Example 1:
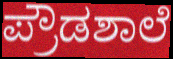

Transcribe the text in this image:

ಪ್ರೌಡಶಾಲೆ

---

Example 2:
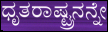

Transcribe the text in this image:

ಧೃತರಾಷ್ಟ್ರನನ್ನೇ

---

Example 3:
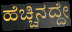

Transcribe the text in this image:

ಹೆಚ್ಚಿನದ್ದೇ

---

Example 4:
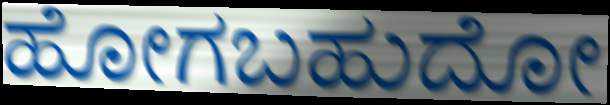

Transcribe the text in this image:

ಹೋಗಬಹುದೋ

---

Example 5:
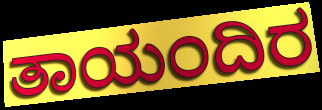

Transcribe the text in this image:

ತಾಯಂದಿರ